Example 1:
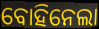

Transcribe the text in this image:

ବୋହିନେଲା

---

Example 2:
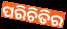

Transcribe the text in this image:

ପରିଚିତିର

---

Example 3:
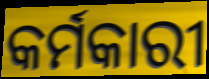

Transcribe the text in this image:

କର୍ମକାରୀ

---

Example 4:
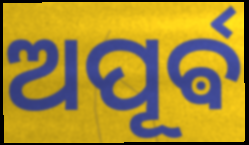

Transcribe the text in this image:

ଅପୂର୍ଵ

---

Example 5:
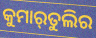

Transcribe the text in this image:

କୁମାର୍‌ତୁଲିର